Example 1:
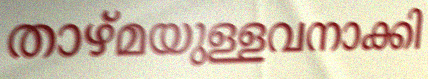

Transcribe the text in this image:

താഴ്മയുള്ളവനാക്കി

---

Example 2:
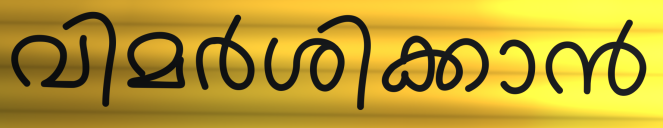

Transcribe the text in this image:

വിമർശിക്കാൻ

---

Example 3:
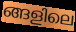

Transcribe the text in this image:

ങ്ങളിലെ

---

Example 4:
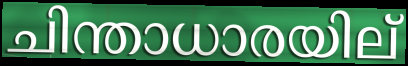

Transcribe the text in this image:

ചിന്താധാരയില്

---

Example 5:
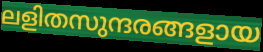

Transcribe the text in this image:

ലളിതസുന്ദരങ്ങളായ